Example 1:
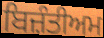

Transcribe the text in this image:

ਬਿਜ਼ੰਤੀਅਮ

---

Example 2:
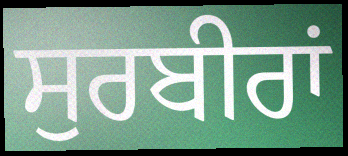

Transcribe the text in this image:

ਸੁਰਬੀਰਾਂ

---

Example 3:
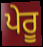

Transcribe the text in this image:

ਪੇਰੂ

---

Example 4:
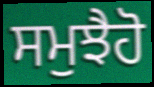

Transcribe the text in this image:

ਸਮੁਝੈਹੋ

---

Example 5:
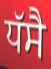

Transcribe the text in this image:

ਧੱਸੈ